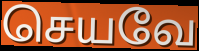
செயவே